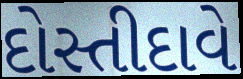
દોસ્તીદાવે